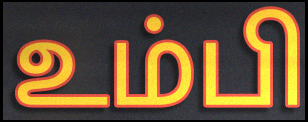
உம்பி